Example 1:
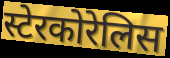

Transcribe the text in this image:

स्टेरकोरेलिस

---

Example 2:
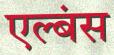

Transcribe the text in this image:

एल्बंस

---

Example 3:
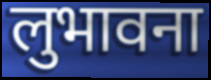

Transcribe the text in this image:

लुभावना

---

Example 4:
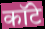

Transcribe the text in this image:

कॉटे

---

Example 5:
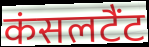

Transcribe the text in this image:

कंसलटैंट